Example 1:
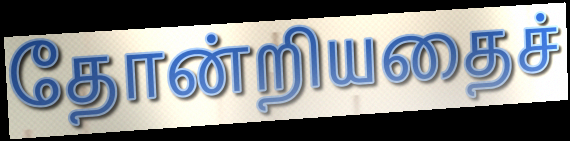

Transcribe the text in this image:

தோன்றியதைச்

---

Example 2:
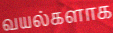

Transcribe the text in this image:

வயல்களாக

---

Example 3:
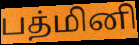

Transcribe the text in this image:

பத்மினி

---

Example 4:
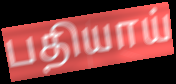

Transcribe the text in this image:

பதியாய்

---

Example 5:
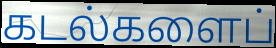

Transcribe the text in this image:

கடல்களைப்